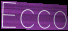
Ecco